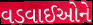
વડવાઈઓને